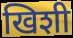
खिशी